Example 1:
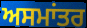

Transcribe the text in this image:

ਅਸਮਾਂਤਰ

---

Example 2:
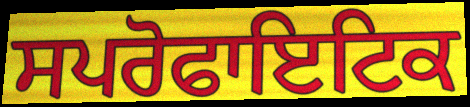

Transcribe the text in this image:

ਸਪਰੋਫਾਇਟਿਕ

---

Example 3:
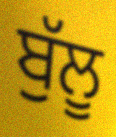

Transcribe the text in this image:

ਬੁੱਲੂ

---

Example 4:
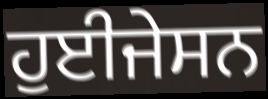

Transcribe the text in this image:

ਹੁਈਜੇਸਨ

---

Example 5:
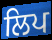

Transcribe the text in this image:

ਲਿਪ